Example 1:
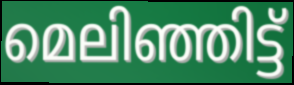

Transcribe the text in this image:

മെലിഞ്ഞിട്ട്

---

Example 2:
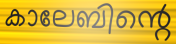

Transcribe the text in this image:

കാലേബിന്റെ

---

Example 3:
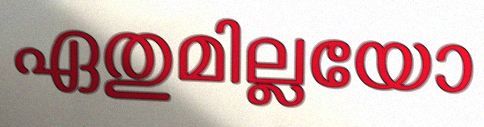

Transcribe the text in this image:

ഏതുമില്ലയോ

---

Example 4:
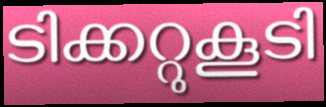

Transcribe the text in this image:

ടിക്കറ്റുകൂടി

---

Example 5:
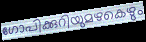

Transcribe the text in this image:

ഗോപിക്കുറിയുമഴകെഴും